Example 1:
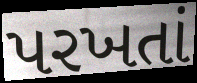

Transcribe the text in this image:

પરખતાં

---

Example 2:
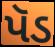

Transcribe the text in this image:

પૅડ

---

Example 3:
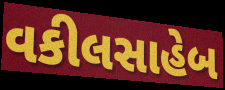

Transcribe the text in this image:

વકીલસાહેબ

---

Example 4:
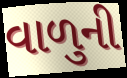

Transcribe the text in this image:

વાળુની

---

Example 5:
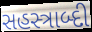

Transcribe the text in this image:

સહસ્ત્રાબ્દી